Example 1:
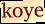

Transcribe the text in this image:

koye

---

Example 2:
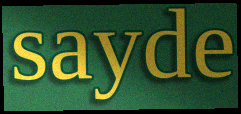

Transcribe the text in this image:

sayde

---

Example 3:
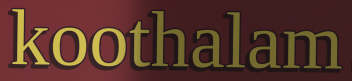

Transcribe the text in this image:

koothalam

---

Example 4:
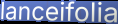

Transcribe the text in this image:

lanceifolia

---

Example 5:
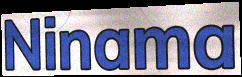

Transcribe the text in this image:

Ninama